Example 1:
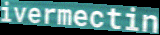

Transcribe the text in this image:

ivermectin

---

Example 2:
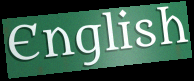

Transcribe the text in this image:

English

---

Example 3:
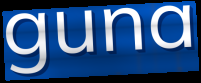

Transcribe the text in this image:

guna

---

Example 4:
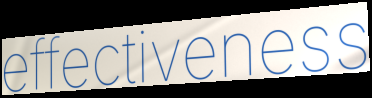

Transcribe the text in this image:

effectiveness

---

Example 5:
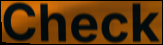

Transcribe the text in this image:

Check